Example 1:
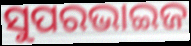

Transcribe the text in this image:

ସୁପରଭାଇଜ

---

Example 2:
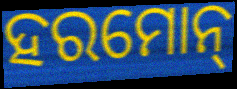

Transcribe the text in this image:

ହରମୋନ୍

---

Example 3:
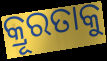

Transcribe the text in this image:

କ୍ରୂରତାକୁ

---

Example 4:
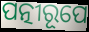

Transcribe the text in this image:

ପତ୍ନୀରୂପେ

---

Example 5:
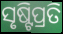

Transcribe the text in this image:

ସୃଷ୍ଟିପ୍ରତି